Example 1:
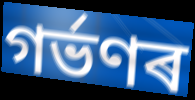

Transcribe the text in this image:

গৰ্ভণৰ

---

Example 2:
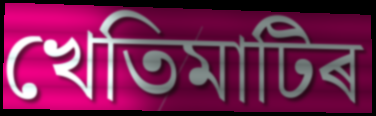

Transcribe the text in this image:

খেতিমাটিৰ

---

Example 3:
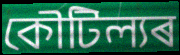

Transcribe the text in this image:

কৌটিল্যৰ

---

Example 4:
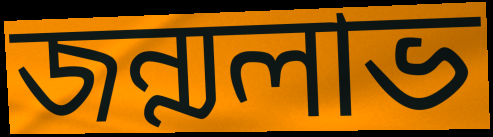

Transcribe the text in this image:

জন্মলাভ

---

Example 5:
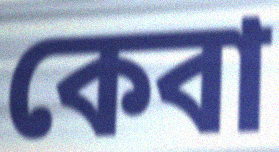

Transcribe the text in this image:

কেবা